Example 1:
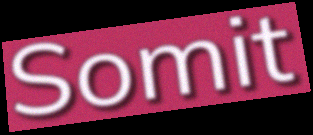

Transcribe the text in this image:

Somit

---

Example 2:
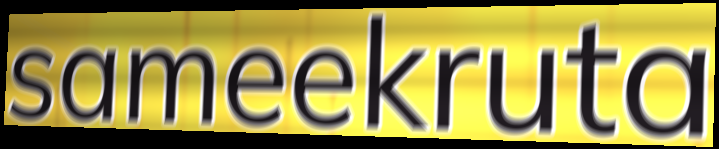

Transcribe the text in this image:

sameekruta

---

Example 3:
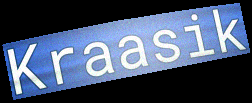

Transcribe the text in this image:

Kraasik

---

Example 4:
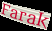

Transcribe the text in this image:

Farak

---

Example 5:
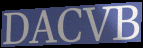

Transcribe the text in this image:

DACVB